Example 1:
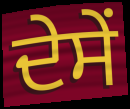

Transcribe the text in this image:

ਦੇਸੇਂ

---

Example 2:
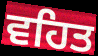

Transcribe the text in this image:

ਵਹਿਤ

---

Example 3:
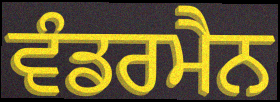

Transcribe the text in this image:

ਵੰਡਰਮੈਨ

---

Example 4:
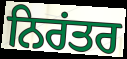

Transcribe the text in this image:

ਨਿਰਂਤਰ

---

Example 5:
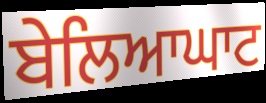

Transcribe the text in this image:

ਬੇਲਿਆਘਾਟ